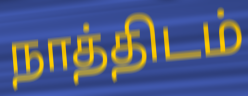
நாத்திடம்